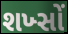
શખ્સોં